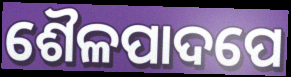
ଶୈଳପାଦପେ